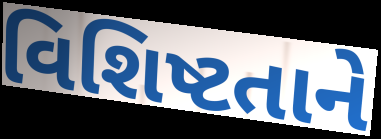
વિશિષ્ટતાને